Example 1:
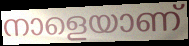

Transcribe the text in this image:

നാളെയാണ്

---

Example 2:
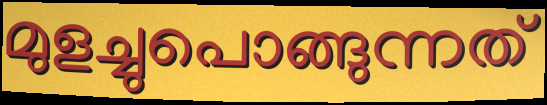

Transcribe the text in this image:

മുളച്ചുപൊങ്ങുന്നത്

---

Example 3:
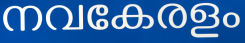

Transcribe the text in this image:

നവകേരളം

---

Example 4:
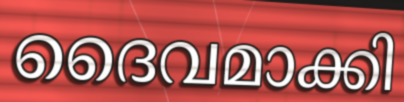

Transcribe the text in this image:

ദൈവമാക്കി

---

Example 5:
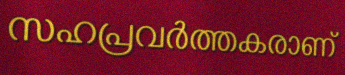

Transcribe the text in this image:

സഹപ്രവർത്തകരാണ്